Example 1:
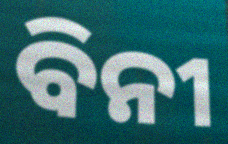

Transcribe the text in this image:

ବିନୀ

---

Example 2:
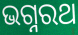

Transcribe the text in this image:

ଭଗ୍ନରଥ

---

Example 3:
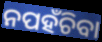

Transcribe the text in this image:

ନପହଁଚିବା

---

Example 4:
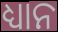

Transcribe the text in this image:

ଧ୍ୟାନ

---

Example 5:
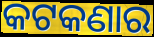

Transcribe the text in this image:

କଟକଣାର